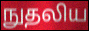
நுதலிய